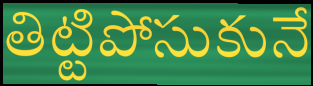
తిట్టిపోసుకునే